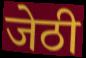
जेठी